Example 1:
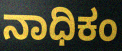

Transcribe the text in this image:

ನಾಧಿಕಂ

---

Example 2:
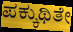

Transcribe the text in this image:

ಪಕ್ಕುಥಿತೇ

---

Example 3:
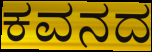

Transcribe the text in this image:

ಕವನದ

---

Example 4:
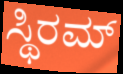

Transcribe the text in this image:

ಸ್ಥಿರಮ್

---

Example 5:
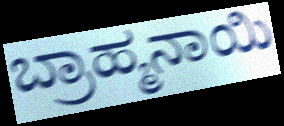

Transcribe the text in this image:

ಬ್ರಾಹ್ಮನಾಯಿ